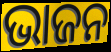
ଭାଜନ